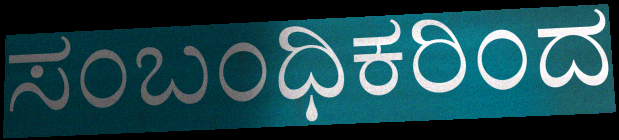
ಸಂಬಂಧಿಕರಿಂದ